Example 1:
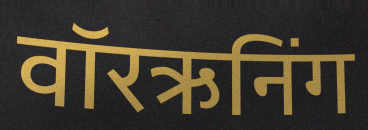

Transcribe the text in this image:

वॉरऋनिंग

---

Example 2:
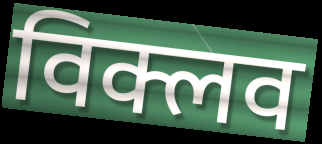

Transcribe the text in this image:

विक्लव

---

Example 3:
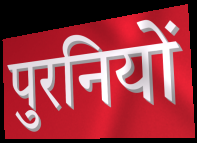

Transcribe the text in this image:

पुरनियों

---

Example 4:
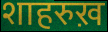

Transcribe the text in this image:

शाहरुख़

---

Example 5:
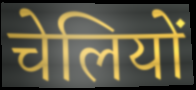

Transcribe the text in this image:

चेलियों